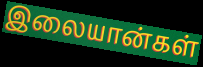
இலையான்கள்